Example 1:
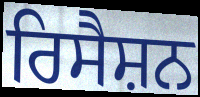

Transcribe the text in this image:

ਰਿਸੈਸ਼ਨ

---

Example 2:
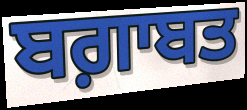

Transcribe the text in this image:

ਬਗ਼ਾਬਤ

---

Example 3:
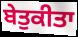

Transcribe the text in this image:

ਬੇਤੁਕੀਤਾ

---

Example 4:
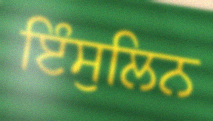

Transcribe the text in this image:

ਇੰਸੁਲਿਨ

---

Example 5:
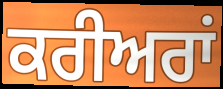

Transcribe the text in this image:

ਕਰੀਅਰਾਂ